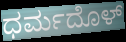
ಧರ್ಮದೊಳ್